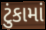
ટુંકામાં